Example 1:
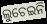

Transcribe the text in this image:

ଲୁଚେଇନି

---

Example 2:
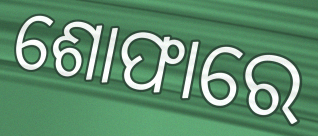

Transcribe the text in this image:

ଶୋଫାରେ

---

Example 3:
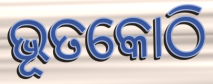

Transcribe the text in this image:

ଭୂତକୋଠି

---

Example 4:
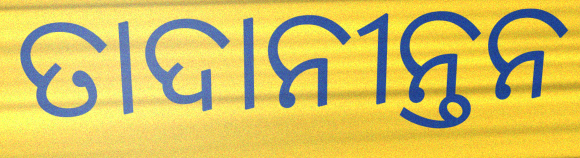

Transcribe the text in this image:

ତାଦାନୀନ୍ତନ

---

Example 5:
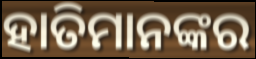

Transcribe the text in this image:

ହାତିମାନଙ୍କର